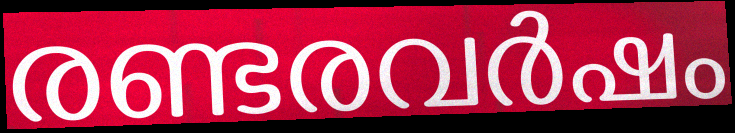
രണ്ടരവർഷം